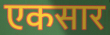
एकसार